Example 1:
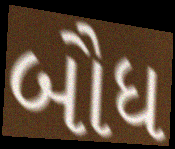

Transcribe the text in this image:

બૌધ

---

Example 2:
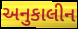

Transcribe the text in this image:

અનુકાલીન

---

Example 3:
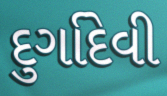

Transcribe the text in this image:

દુર્ગાદેવી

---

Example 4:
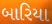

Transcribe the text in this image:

બારિયા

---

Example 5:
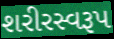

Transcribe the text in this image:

શરીરસ્વરૂપ